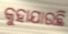
କୁହାଯାଉଛି